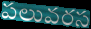
పలువరస